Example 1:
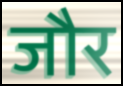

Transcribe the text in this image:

जौर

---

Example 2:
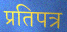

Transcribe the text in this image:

प्रतिपत्र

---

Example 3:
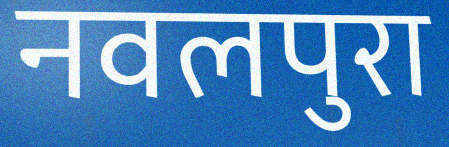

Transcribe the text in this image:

नवलपुरा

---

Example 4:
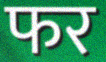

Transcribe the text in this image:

फर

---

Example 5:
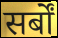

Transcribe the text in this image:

सर्बों